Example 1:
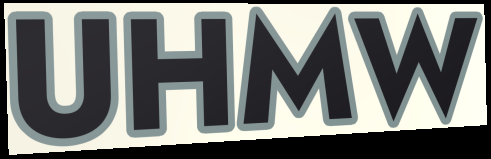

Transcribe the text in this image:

UHMW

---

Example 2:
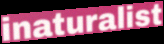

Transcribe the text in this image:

inaturalist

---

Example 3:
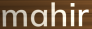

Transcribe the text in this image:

mahir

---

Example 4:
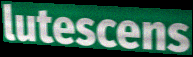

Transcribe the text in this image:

lutescens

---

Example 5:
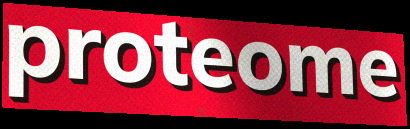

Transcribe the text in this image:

proteome